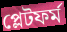
প্লেটফৰ্ম